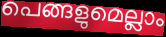
പെങ്ങളുമെല്ലാം